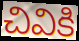
చివికి